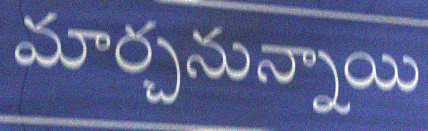
మార్చనున్నాయి